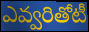
ఎవ్వరితోటీ